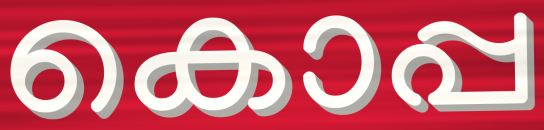
കൊപ്പ